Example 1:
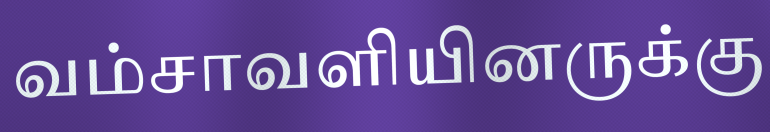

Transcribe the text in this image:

வம்சாவளியினருக்கு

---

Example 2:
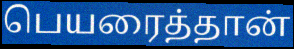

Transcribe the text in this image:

பெயரைத்தான்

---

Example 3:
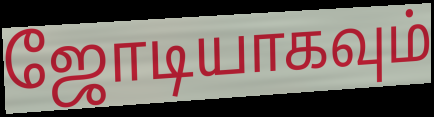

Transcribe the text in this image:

ஜோடியாகவும்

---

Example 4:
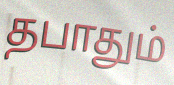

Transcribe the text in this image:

தபாதும்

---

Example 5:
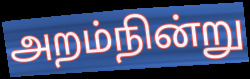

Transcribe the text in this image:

அறம்நின்று